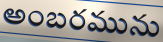
అంబరమును